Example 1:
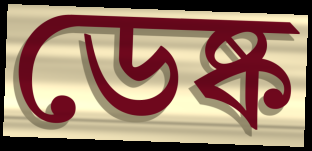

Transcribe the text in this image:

ডেষ্ক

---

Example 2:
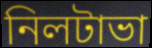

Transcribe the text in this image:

নিলটাভা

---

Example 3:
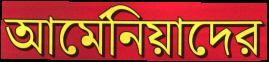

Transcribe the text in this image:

আর্মেনিয়াদের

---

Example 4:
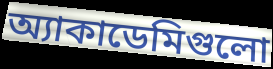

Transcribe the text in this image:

অ্যাকাডেমিগুলো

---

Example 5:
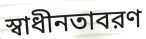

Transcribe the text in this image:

স্বাধীনতাবরণ